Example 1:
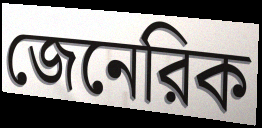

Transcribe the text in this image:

জেনেরিক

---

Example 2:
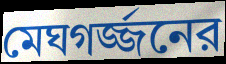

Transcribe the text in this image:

মেঘগর্জ্জনের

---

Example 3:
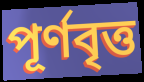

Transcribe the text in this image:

পূর্ণবৃত্ত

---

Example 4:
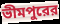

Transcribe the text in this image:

ভীমপুরের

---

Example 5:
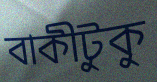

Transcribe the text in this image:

বাকীটুকু